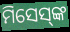
ମିସେସ୍‌ଙ୍କ